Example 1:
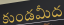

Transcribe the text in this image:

కుండమీద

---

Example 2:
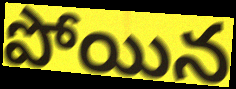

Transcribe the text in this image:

పోయిన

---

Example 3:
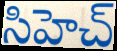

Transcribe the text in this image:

సిహెచ్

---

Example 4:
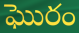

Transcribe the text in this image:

ఘొరం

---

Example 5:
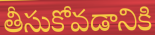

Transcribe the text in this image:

తీసుకోవడానికి